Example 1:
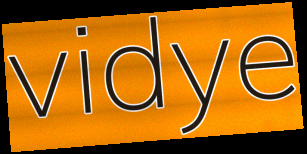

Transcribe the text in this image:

vidye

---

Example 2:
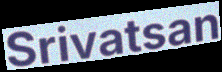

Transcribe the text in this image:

Srivatsan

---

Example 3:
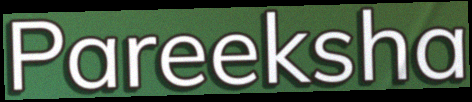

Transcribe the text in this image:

Pareeksha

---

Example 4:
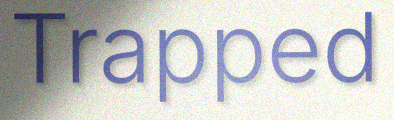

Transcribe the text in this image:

Trapped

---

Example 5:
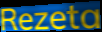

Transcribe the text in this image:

Rezeta